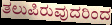
ತಲುಪಿರುವುದರಿಂದ